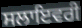
ਸਲਾਇਵਰੀ